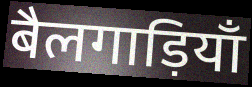
बैलगाड़ियाँ